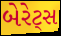
બેરેટ્સ